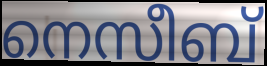
നെസീബ്